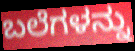
ಬಲೆಗಳನ್ನು